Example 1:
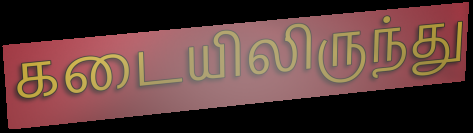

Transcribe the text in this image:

கடையிலிருந்து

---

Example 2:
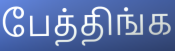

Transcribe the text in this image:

பேத்திங்க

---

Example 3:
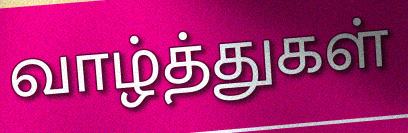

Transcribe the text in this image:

வாழ்த்துகள்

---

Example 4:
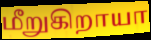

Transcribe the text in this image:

மீறுகிறாயா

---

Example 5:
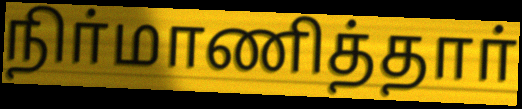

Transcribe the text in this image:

நிர்மாணித்தார்